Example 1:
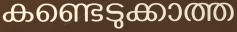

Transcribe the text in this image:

കണ്ടെടുക്കാത്ത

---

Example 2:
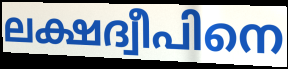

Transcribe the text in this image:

ലക്ഷദ്വീപിനെ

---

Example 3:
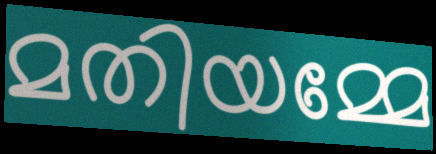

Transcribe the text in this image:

മതിയമ്മേ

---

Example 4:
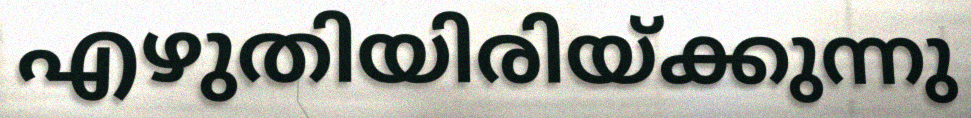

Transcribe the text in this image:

എഴുതിയിരിയ്ക്കുന്നു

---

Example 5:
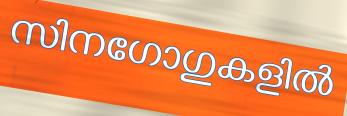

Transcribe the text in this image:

സിനഗോഗുകളിൽ